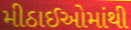
મીઠાઈઓમાંથી